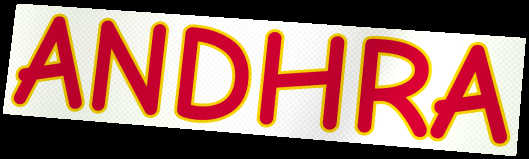
ANDHRA